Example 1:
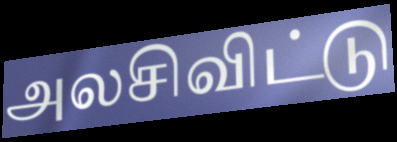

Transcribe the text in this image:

அலசிவிட்டு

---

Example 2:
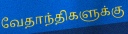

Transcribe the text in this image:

வேதாந்திகளுக்கு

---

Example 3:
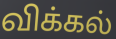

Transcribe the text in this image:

விக்கல்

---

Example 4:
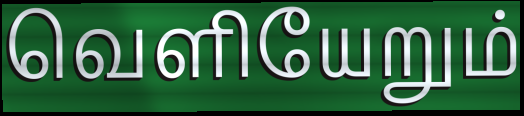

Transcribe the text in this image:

வெளியேறும்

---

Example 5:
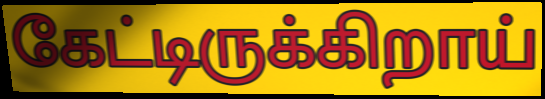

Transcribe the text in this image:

கேட்டிருக்கிறாய்